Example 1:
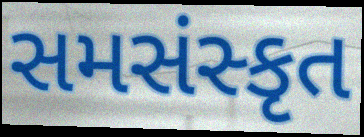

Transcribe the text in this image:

સમસંસ્કૃત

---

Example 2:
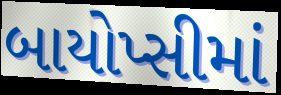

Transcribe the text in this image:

બાયોપ્સીમાં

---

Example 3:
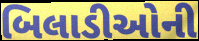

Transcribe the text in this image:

બિલાડીઓની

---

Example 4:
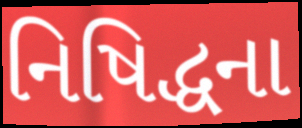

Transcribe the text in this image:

નિષિદ્ધના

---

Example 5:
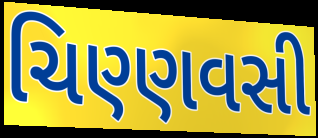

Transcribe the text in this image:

ચિણ્ણવસી